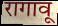
रागावू